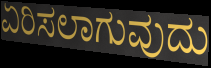
ಏರಿಸಲಾಗುವುದು